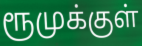
ரூமுக்குள்